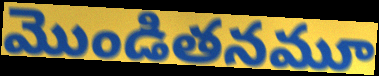
మొండితనమూ